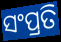
ସଂପ୍ରତି